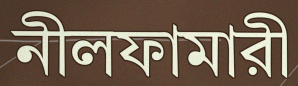
নীলফামারী